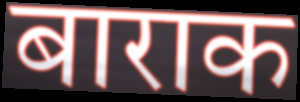
बाराक